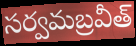
సర్వమబ్రవీత్